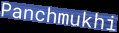
Panchmukhi